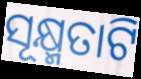
ସୂକ୍ଷ୍ମତାଟି